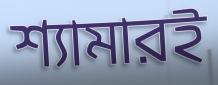
শ্যামারই